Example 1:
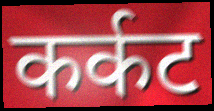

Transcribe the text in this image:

कर्कट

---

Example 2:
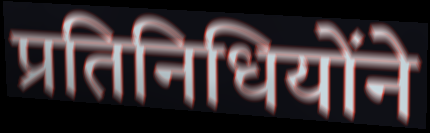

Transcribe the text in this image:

प्रतिनिधियोंने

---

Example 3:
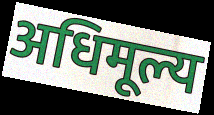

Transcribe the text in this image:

अधिमूल्य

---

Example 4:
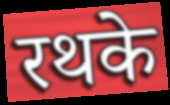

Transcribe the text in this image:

रथके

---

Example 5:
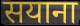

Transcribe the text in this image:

सयाना